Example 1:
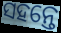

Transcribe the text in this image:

ସହନ୍ତେ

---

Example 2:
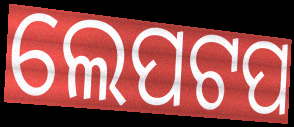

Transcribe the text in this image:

ଲେପଟପ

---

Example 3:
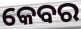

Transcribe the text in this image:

କେବର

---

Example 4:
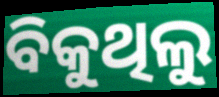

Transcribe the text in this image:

ବିକୁଥିଲୁ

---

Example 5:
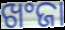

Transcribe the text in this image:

ଖଂଜା